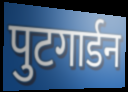
पुटगार्डन